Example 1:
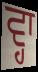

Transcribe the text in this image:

ਵ੍ਹਾ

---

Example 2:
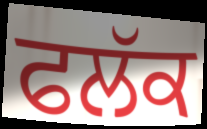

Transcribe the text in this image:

ਫਲੱਕ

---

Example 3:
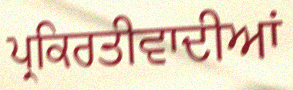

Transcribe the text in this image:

ਪ੍ਰਕਿਰਤੀਵਾਦੀਆਂ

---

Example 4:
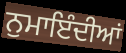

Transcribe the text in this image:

ਨੁਮਾਇੰਦੀਆਂ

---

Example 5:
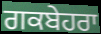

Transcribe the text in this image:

ਗਕਬੇਹਰਾ